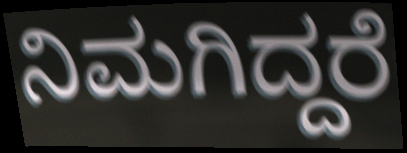
ನಿಮಗಿದ್ದರೆ